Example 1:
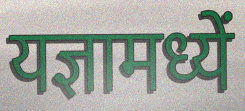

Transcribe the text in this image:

यज्ञामध्यें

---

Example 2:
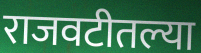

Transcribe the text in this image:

राजवटीतल्या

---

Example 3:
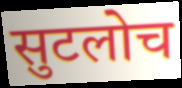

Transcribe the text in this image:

सुटलोच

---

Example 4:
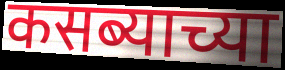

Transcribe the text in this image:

कसब्याच्या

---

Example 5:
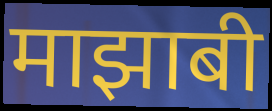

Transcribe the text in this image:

माझाबी